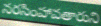
నరసింహావతారుని